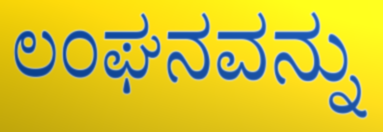
ಲಂಘನವನ್ನು